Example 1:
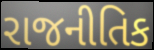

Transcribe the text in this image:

રાજનીતિક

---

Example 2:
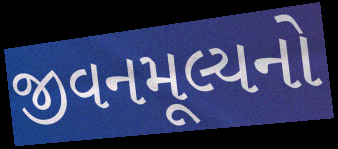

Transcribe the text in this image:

જીવનમૂલ્યનો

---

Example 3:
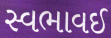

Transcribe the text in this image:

સ્વભાવઈ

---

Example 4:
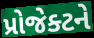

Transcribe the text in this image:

પ્રોજેક્ટને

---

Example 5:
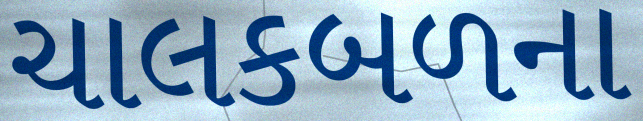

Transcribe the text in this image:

ચાલકબળના